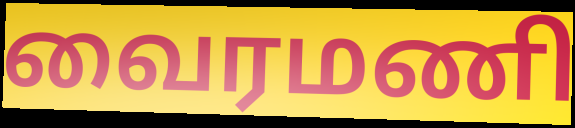
வைரமணி